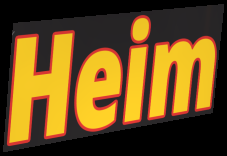
Heim